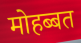
मोहब्बत